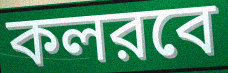
কলরবে